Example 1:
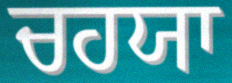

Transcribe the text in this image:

ਚਹਯਾ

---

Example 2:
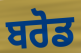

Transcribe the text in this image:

ਬਰੋਡ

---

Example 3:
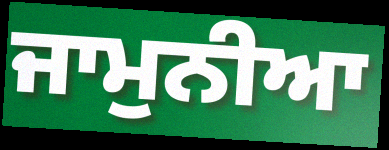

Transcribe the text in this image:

ਜਾਮੁਨੀਆ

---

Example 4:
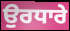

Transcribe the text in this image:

ਉਰਧਾਰੇ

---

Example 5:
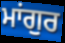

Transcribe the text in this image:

ਮਾਂਗੁਰ